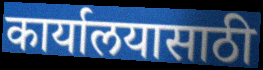
कार्यालयासाठी